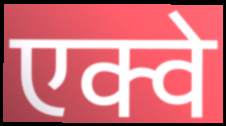
एक्वे